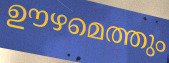
ഊഴമെത്തും